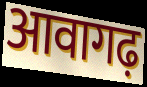
आवागढ़